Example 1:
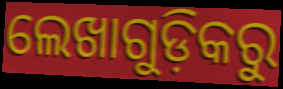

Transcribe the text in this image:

ଲେଖାଗୁଡ଼ିକରୁ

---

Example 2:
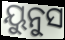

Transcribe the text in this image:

ୟୁନୁସ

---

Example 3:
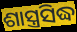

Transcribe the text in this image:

ଶାସ୍ତ୍ରସିଦ୍ଧ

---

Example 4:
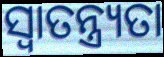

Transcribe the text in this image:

ସ୍ୱାତନ୍ତ୍ର୍ୟତା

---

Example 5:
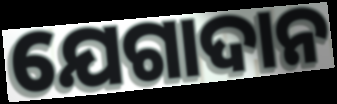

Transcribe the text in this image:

ଯେଗାଦାନ